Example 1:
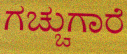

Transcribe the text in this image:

ಗಚ್ಚುಗಾರೆ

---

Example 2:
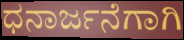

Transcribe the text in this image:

ಧನಾರ್ಜನೆಗಾಗಿ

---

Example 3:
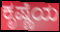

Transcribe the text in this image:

ಕೃಷ್ಣೆಯ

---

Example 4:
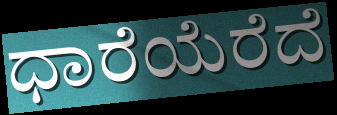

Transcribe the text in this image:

ಧಾರೆಯೆರೆದೆ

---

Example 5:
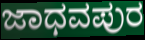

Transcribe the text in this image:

ಜಾಧವಪುರ